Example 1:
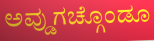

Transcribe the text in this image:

ಅವ್ಡುಗಚ್ಗೊಂಡೂ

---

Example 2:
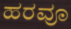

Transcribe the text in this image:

ಹರವೂ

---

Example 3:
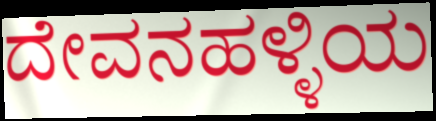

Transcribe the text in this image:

ದೇವನಹಳ್ಳಿಯ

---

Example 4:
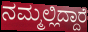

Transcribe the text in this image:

ನಮ್ಮಲ್ಲಿದ್ದಾರೆ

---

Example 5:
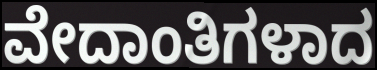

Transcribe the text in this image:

ವೇದಾಂತಿಗಳಾದ